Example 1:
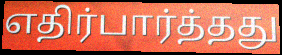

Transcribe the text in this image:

எதிர்பார்த்தது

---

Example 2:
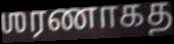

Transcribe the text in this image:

ஶரணாகத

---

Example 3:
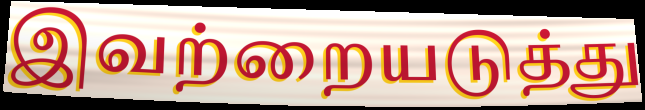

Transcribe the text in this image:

இவற்றையடுத்து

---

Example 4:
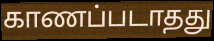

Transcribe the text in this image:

காணப்படாதது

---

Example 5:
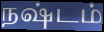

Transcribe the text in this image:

நஷ்டம்